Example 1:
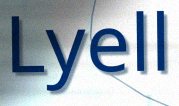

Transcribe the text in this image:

Lyell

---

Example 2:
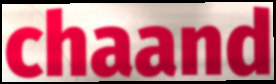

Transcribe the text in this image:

chaand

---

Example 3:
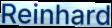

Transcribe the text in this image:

Reinhard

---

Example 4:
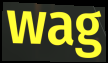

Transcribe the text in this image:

wag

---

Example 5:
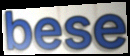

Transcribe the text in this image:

bese